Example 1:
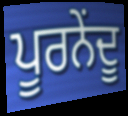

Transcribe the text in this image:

ਪੂਰਨੇਂਦੂ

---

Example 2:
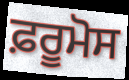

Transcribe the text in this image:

ਫ਼ਰੂਮੋਸ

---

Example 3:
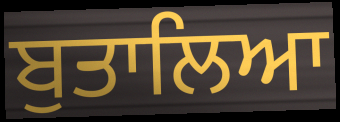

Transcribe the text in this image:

ਬੁਤਾਲਿਆ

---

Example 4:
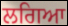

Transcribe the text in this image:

ਲਗਿਆ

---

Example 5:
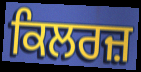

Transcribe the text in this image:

ਕਿਲਰਜ਼